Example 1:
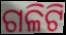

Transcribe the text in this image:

ଗଳିଟି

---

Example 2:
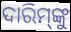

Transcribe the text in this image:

ଦାରିମ୍‍ଙ୍କୁ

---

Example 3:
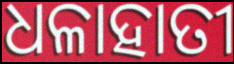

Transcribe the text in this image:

ଧଳାହାତୀ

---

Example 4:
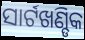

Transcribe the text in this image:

ସାର୍ଟଖଣ୍ଡିକ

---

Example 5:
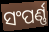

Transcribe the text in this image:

ସଂପର୍ଣ୍ଣ